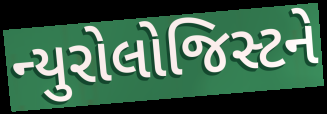
ન્યુરોલોજિસ્ટને